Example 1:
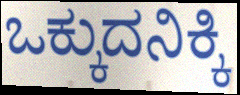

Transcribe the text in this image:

ಒಕ್ಕುದನಿಕ್ಕಿ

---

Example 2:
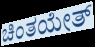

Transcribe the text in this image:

ಚಿಂತಯೇತ್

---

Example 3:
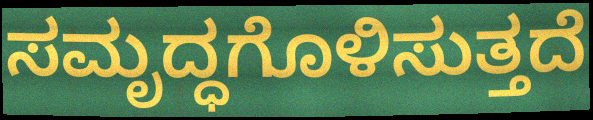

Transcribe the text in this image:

ಸಮೃದ್ಧಗೊಳಿಸುತ್ತದೆ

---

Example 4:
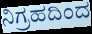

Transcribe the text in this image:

ನಿಗ್ರಹದಿಂದ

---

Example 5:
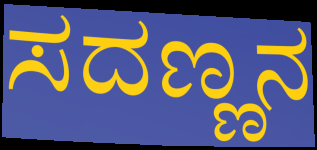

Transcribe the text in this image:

ಸದಣ್ಣನ